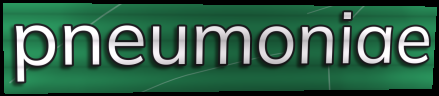
pneumoniae